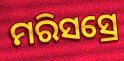
ମରିସସ୍ରେ